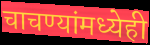
चाचण्यांमध्येही